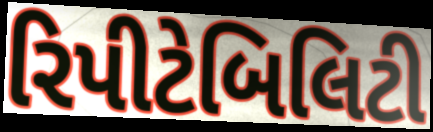
રિપીટેબિલિટી